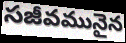
సజీవమునైన